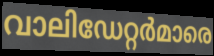
വാലിഡേറ്റർമാരെ